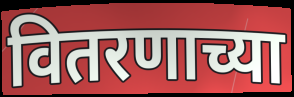
वितरणाच्या